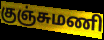
குஞ்சுமணி